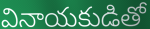
వినాయకుడితో